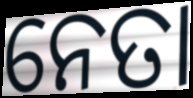
ନେତା